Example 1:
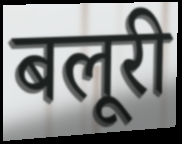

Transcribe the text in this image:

बलूरी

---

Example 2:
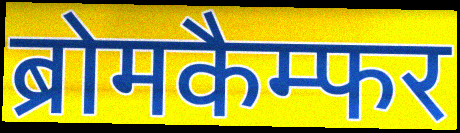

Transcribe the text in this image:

ब्रोमकैम्फर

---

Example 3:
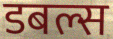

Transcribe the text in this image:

डबल्‍स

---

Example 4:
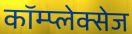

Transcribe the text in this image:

कॉम्प्लेक्सेज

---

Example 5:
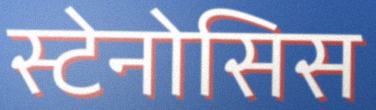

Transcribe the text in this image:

स्टेनोसिस